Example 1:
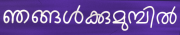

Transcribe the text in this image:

ഞങ്ങൾക്കുമുമ്പിൽ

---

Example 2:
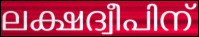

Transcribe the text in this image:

ലക്ഷദ്വീപിന്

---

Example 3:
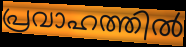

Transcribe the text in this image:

പ്രവാഹത്തിൽ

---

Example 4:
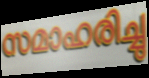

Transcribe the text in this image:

സമാഹരിച്ചു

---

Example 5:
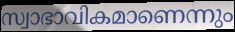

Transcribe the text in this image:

സ്വാഭാവികമാണെന്നും